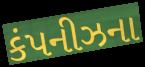
કંપનીઝના